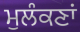
ਮੁਲੰਕਣਾਂ